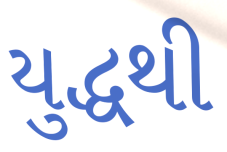
યુદ્ધથી